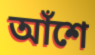
আঁশে